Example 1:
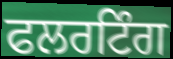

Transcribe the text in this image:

ਫਲਰਟਿੰਗ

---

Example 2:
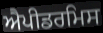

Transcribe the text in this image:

ਐਪੀਡਰਮਿਸ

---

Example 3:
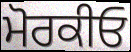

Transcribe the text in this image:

ਮੋਰਕੀਓ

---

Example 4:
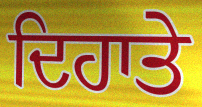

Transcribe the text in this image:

ਦਿਹਾਤੇ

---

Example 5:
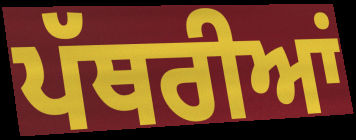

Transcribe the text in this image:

ਪੱਥਰੀਆਂ